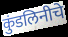
कुंडलिनीचे